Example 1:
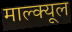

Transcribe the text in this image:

माल्क्यूल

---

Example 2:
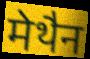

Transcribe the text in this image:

मेथैन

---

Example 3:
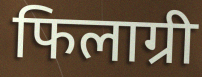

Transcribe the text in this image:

फिलाग्री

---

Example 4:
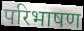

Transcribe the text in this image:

परिभाषण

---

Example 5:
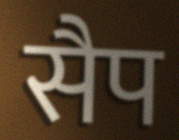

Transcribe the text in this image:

सैप